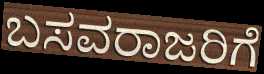
ಬಸವರಾಜರಿಗೆ